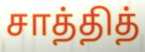
சாத்தித்